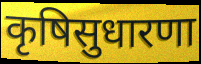
कृषिसुधारणा